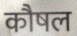
कौषल